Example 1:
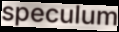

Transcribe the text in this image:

speculum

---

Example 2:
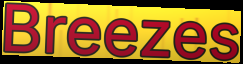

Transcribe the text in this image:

Breezes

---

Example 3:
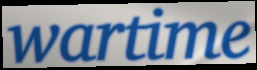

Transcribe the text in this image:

wartime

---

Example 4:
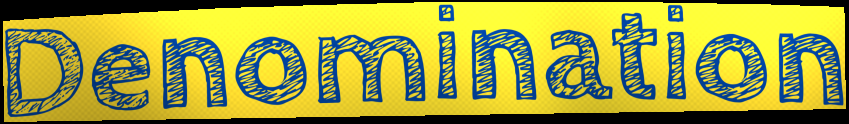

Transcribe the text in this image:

Denomination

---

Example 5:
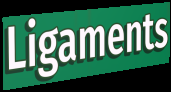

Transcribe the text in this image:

Ligaments